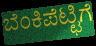
ಬೆಂಕಿಪೆಟ್ಟಿಗೆ